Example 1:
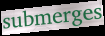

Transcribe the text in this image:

submerges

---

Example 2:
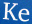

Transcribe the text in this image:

Ke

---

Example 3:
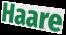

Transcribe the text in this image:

Haare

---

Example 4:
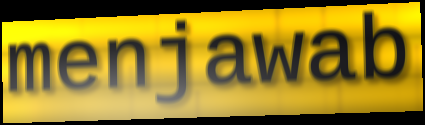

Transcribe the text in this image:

menjawab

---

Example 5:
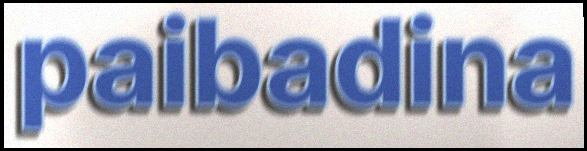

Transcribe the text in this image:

paibadina